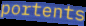
portents